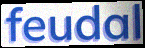
feudal